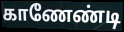
காணேண்டி